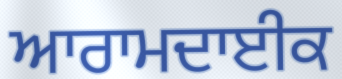
ਆਰਾਮਦਾਈਕ